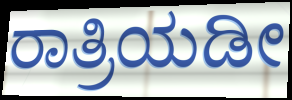
ರಾತ್ರಿಯಡೀ